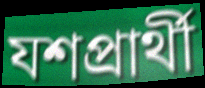
যশপ্রার্থী